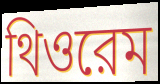
থিওরেম